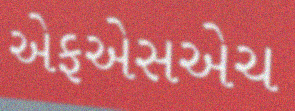
એફએસએચ